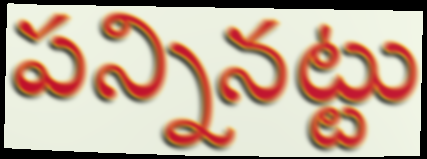
పన్నినట్టు